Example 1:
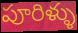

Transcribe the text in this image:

పూరిళ్ళు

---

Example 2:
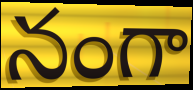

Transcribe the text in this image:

నంగా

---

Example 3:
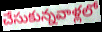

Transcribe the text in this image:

చేసుకున్నవాళ్లలో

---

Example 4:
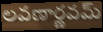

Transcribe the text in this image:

లవణార్ణవమ్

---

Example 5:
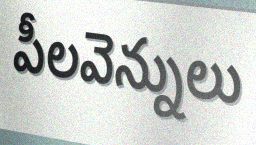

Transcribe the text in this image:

పీలవెన్నులు